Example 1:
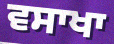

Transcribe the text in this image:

ਵਸਾਖਾ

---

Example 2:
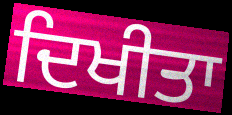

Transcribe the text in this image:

ਦਿਖੀਤਾ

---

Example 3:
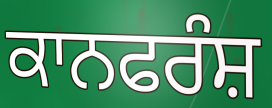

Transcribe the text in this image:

ਕਾਨਫਰੰਸ਼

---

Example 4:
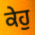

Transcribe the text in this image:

ਕੇਹੁ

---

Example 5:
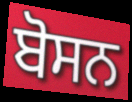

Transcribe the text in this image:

ਬੋਸਨ